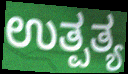
ಉತ್ಪತ್ಯ